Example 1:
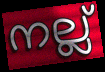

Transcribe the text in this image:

നല്ല്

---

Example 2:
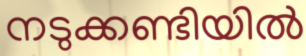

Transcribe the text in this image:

നടുക്കണ്ടിയിൽ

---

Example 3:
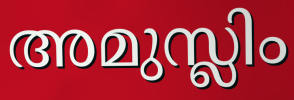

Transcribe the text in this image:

അമുസ്ലിം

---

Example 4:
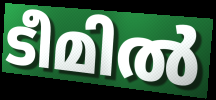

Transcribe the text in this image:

ടീമിൽ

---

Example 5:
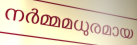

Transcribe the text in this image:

നർമ്മമധുരമായ